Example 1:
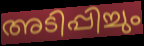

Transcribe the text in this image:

അടിപ്പിച്ചും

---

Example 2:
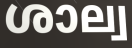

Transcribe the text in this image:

ശാല്വ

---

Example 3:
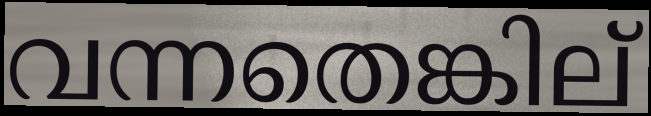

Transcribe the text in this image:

വന്നതെങ്കില്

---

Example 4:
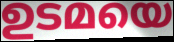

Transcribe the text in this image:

ഉടമയെ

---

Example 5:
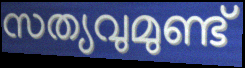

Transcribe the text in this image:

സത്യവുമുണ്ട്